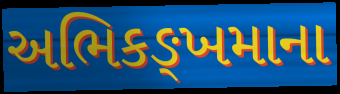
અભિકઙ્ખમાના